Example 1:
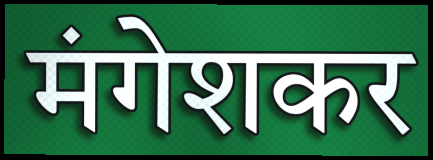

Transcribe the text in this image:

मंगेशकर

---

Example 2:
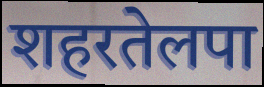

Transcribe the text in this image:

शहरतेलपा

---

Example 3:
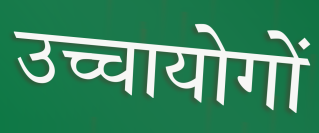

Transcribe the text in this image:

उच्‍चायोगों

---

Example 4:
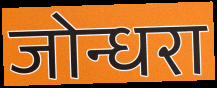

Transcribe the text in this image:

जोन्धरा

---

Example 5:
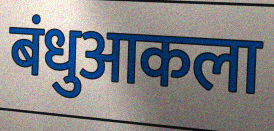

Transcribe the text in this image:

बंधुआकला